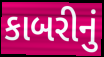
કાબરીનું